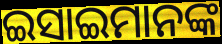
ଇସାଇମାନଙ୍କ